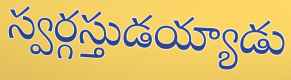
స్వర్గస్తుడయ్యాడు